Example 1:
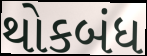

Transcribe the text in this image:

થોકબંધ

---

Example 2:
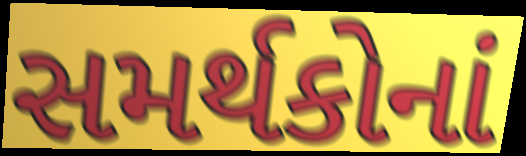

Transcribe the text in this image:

સમર્થકોનાં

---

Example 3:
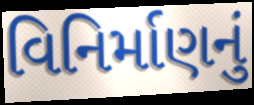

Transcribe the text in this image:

વિનિર્માણનું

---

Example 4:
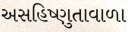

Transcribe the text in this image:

અસહિષ્ણુતાવાળા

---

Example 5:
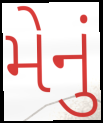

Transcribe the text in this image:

મેનું